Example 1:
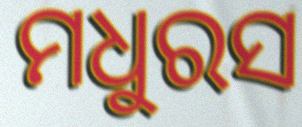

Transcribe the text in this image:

ମଧୁରସ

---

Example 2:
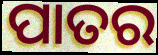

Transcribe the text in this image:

ପାତର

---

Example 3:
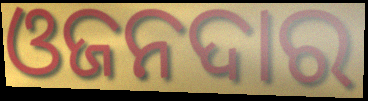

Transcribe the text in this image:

ଓଜନଦାର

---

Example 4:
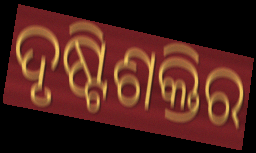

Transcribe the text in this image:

ଦୃଷ୍ଟିଶକ୍ତିର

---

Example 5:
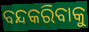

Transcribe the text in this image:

ବନ୍ଦକରିବାକୁ